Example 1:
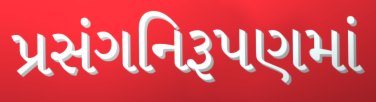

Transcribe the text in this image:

પ્રસંગનિરૂપણમાં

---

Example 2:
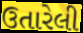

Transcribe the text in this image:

ઉતારેલી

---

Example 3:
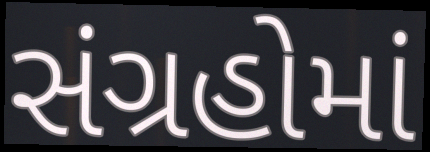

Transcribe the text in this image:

સંગ્રહોમાં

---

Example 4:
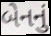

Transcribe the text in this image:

બેનનું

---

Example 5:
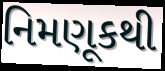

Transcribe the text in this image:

નિમણૂકથી